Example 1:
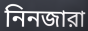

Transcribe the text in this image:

নিনজারা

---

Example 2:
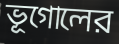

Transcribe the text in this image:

ভূগোলের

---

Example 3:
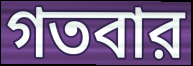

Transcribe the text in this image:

গতবার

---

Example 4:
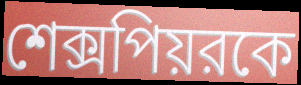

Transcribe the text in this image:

শেক্সপিয়রকে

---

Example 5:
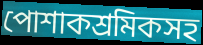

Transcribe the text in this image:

পোশাকশ্রমিকসহ